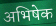
अभिषेक